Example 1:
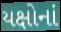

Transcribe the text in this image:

યક્ષોનાં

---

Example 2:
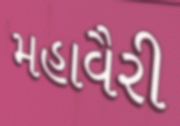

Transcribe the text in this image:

મહાવૈરી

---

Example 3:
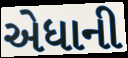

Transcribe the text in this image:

એધાની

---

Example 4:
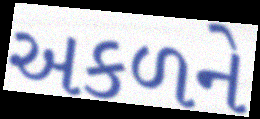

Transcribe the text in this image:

અકળને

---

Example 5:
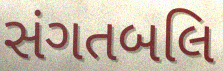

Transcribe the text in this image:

સંગતબલિ